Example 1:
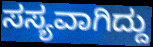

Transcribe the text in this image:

ಸಸ್ಯವಾಗಿದ್ದು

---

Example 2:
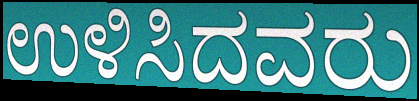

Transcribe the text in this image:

ಉಳಿಸಿದವರು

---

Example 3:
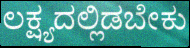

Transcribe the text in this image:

ಲಕ್ಷ್ಯದಲ್ಲಿಡಬೇಕು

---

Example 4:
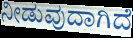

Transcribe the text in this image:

ನೀಡುವುದಾಗಿದೆ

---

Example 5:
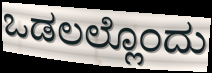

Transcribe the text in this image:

ಒಡಲಲ್ಲೊಂದು